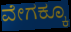
ವೇಗಕ್ಕೂ